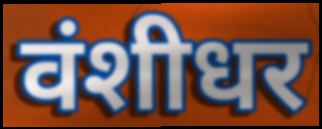
वंशीधर